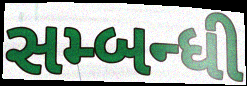
સમ્બન્ધી